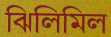
ঝিলিমিল